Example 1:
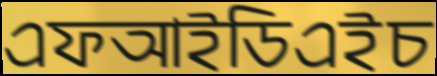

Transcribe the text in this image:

এফআইডিএইচ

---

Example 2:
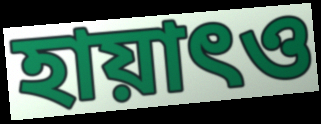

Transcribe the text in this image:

হায়াৎও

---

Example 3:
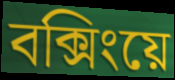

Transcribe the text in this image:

বক্সিংয়ে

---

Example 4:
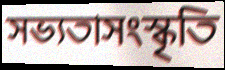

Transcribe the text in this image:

সভ্যতাসংস্কৃতি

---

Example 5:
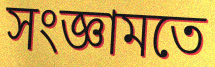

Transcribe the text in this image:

সংজ্ঞামতে